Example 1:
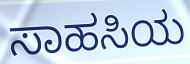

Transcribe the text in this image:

ಸಾಹಸಿಯ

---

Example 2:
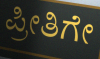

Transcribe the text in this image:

ಪ್ರೀತಿಗೇ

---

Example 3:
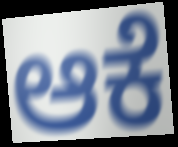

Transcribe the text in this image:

ಆಕೆ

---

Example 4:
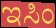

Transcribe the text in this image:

ಇಸಿಂ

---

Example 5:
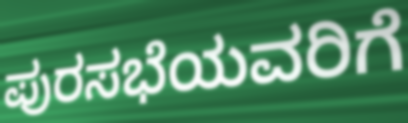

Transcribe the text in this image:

ಪುರಸಭೆಯವರಿಗೆ